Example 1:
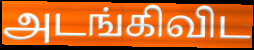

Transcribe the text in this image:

அடங்கிவிட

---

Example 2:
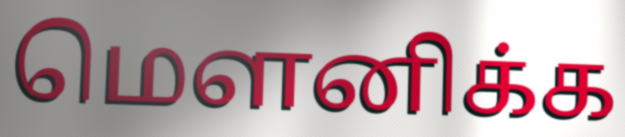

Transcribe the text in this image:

மெளனிக்க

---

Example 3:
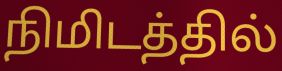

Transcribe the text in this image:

நிமிடத்தில்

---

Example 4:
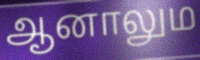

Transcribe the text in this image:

ஆனாலும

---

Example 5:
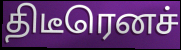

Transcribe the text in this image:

திடீரெனச்